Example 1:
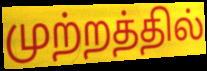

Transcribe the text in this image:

முற்றத்தில்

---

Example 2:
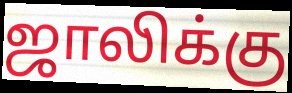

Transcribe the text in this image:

ஜாலிக்கு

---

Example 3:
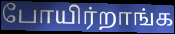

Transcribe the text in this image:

போயிர்றாங்க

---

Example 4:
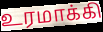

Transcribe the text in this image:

உரமாக்கி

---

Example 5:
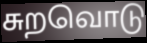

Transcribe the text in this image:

சுறவொடு